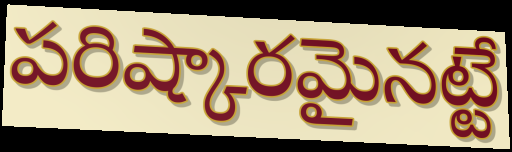
పరిష్కారమైనట్టే